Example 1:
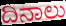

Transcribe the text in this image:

ದಿನಾಲು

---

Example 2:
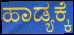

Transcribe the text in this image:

ಹಾಡ್ಯಕ್ಕೆ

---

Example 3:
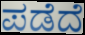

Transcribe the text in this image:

ಪಡೆದೆ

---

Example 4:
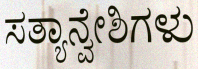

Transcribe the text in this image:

ಸತ್ಯಾನ್ವೇಶಿಗಳು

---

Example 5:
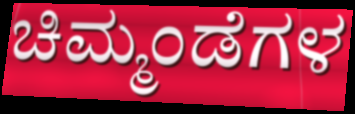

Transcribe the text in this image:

ಚಿಮ್ಮಂಡೆಗಳ